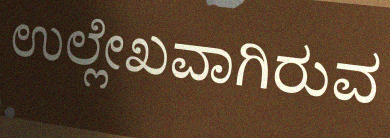
ಉಲ್ಲೇಖವಾಗಿರುವ